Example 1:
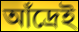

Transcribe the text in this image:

আঁদ্রেই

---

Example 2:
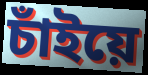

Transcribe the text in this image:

চাঁইয়ে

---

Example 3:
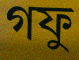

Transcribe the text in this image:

গফু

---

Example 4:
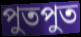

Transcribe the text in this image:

পুতপুত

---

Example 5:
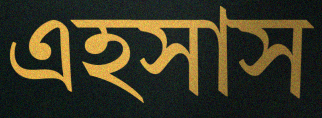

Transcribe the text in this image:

এহসাস